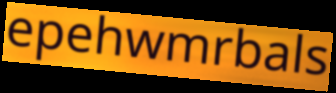
epehwmrbals